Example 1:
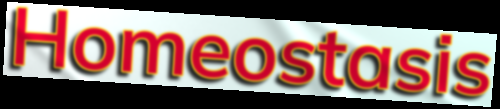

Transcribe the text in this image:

Homeostasis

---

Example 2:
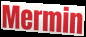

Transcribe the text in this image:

Mermin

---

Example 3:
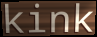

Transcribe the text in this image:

kink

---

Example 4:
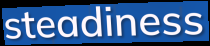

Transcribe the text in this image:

steadiness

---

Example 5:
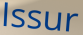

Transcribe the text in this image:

Issur